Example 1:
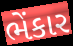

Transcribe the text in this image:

ભેંકાર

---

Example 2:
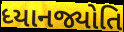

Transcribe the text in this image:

ધ્યાનજ્યોતિ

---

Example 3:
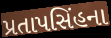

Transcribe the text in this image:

પ્રતાપસિંહના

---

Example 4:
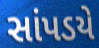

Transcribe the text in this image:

સાંપડયે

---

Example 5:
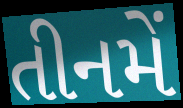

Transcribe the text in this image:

તીનમેં